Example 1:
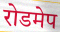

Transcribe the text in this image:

रोडमेप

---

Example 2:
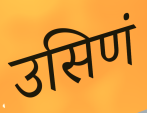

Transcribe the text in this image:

उसिणं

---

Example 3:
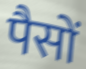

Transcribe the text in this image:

पैसों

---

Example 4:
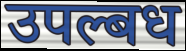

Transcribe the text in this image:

उपल्‍बध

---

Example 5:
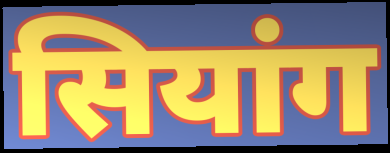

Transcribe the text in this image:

सियांग